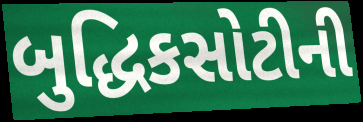
બુદ્ધિકસોટીની